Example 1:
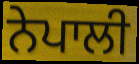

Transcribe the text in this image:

ਨੇਪਾਲੀ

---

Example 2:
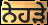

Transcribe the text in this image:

ਨੇਹੜੇ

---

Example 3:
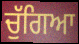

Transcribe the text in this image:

ਚੁੱਗਿਆ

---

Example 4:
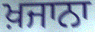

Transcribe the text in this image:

ਖ਼ਜਾਨਾ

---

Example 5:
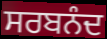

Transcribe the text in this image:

ਸਰਬਨੰਦ